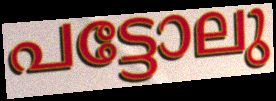
പട്ടോലു